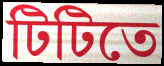
টিটিতে